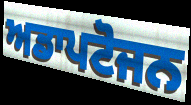
ਅਡਾਪਟੋਜਨ